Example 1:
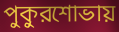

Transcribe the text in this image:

পুকুরশোভায়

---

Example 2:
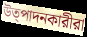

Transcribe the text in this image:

উত্পাদনকারীরা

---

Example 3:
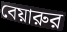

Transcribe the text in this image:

বেয়ারুর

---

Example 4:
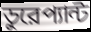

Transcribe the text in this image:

ডুরেপ্যান্ট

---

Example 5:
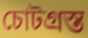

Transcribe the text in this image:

চোটগ্রস্ত